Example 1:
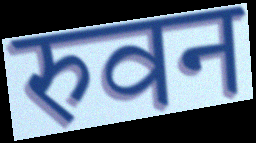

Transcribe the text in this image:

रुवन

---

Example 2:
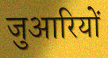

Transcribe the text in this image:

जुआरियों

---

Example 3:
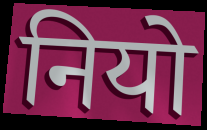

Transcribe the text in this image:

नियो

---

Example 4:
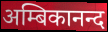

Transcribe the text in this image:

अम्बिकानन्द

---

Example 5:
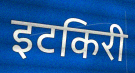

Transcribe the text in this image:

इटकिरी